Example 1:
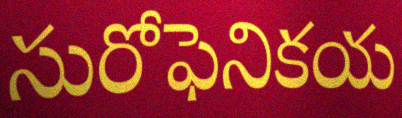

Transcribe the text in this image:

సురోఫెనికయ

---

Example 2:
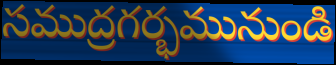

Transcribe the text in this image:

సముద్రగర్భమునుండి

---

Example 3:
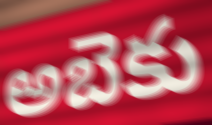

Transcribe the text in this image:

అబెకు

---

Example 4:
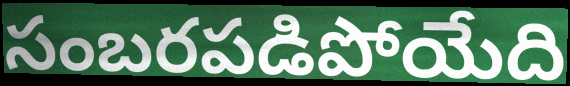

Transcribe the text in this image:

సంబరపడిపోయేది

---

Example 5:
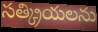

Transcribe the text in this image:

సత్క్రియలను